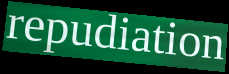
repudiation